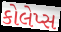
કોલેપ્સ